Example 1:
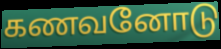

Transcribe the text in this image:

கணவனோடு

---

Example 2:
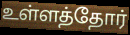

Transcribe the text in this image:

உள்ளத்தோர்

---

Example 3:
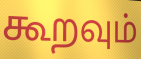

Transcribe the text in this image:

கூறவும்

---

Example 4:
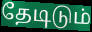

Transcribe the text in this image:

தேடிடும்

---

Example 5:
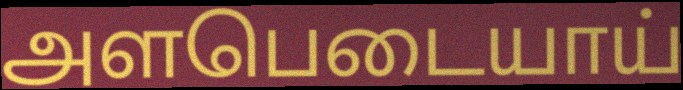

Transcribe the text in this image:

அளபெடையாய்